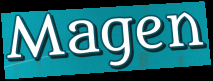
Magen